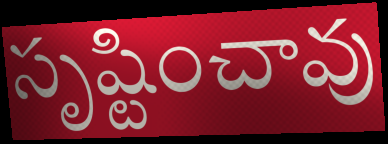
సృష్టించావు